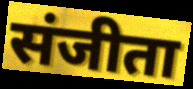
संजीता